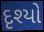
દૃશ્યો